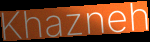
Khazneh